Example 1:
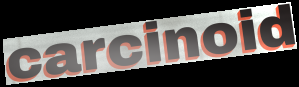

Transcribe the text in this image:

carcinoid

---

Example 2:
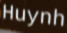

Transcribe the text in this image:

Huynh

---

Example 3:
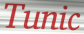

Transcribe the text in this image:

Tunic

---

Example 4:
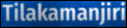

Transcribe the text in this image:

Tilakamanjiri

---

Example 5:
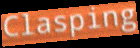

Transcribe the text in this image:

Clasping